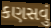
કણસવું